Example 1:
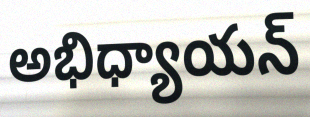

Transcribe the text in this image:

అభిధ్యాయన్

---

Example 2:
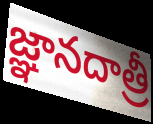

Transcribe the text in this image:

జ్ఞానదాత్రీ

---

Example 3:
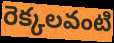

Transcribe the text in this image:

రెక్కలవంటి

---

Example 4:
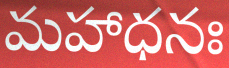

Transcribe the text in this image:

మహాధనః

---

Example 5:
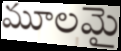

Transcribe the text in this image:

మూలమై